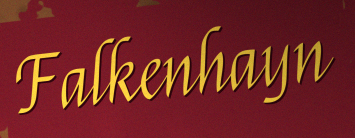
Falkenhayn